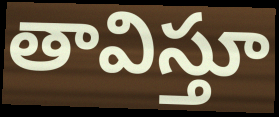
తావిస్తూ